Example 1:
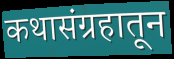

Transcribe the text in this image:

कथासंग्रहातून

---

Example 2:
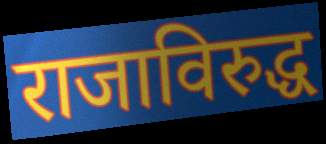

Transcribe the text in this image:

राजाविरुद्ध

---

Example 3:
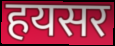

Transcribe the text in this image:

हयसर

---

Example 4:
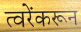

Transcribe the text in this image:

त्वरेंकरून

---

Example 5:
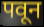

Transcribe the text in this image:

पवून